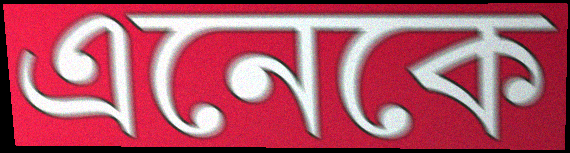
এনেকে